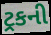
ટ્રકની